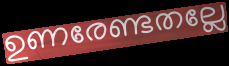
ഉണരേണ്ടതല്ലേ